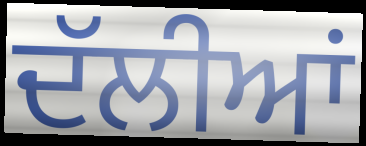
ਦੱਲੀਆਂ